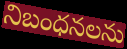
నిబంధనలను